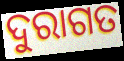
ଦୁରାଗତ